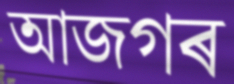
আজগৰ